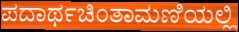
ಪದಾರ್ಥಚಿಂತಾಮಣಿಯಲ್ಲಿ